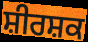
ਸ਼ੀਰਸ਼ਕ